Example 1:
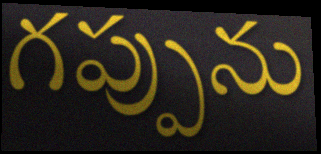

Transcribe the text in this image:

గప్పును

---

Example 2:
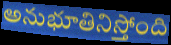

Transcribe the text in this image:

అనుభూతినిస్తోంది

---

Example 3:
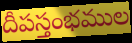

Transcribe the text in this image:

దీపస్తంభముల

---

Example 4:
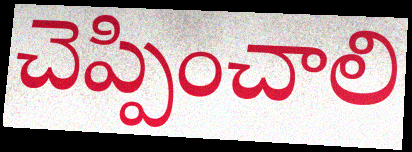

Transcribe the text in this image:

చెప్పించాలి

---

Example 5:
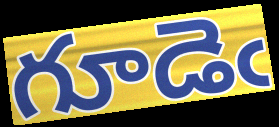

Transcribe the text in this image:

గూడెఁ